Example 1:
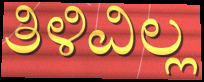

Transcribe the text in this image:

ತಿಳಿವಿಲ್ಲ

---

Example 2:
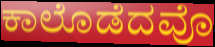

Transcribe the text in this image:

ಕಾಲೊಡೆದವೊ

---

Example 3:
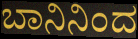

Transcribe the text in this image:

ಬಾನಿನಿಂದ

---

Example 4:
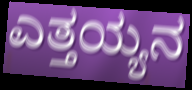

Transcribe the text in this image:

ಎತ್ತಯ್ಯನ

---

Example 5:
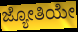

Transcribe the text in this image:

ಜ್ಯೋತಿಯೇ